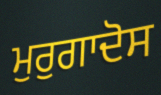
ਮੁਰੁਗਾਦੋਸ